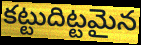
కట్టుదిట్టమైన